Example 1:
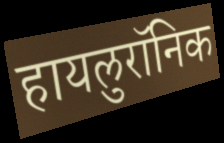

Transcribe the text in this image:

हायलुरॉनिक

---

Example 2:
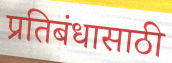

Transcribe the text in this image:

प्रतिबंधासाठी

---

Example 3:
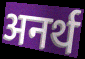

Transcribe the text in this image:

अनर्थ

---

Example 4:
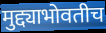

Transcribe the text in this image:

मुद्द्याभोवतीच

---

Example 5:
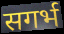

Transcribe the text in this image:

सगर्भ